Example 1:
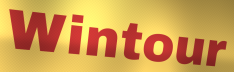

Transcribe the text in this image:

Wintour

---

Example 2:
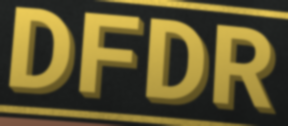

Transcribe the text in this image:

DFDR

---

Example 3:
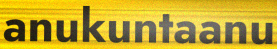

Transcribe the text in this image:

anukuntaanu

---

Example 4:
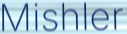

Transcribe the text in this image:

Mishler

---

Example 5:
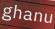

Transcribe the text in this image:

ghanu